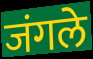
जंगले